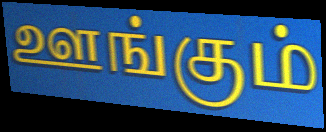
ஊங்கும்